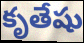
కృతేషు